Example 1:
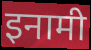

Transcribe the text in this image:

इनामी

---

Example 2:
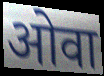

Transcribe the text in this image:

ओवा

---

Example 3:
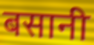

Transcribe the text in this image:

बसानी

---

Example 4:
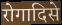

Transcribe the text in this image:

रोगादिसे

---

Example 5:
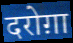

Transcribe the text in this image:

दरोग़ा